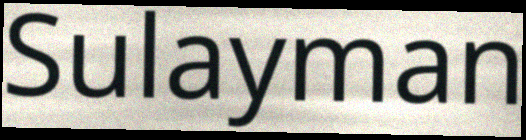
Sulayman